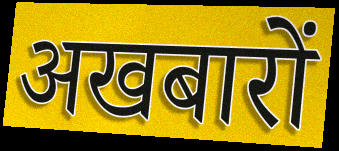
अखबारों